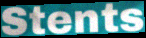
Stents